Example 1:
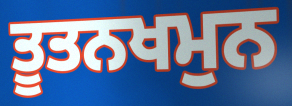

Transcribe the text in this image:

ਤੂਤਨਖਮੁਨ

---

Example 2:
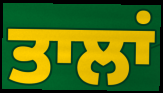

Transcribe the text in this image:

ਤਾਲਾਂ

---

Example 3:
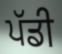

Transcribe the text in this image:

ਪੱਡੀ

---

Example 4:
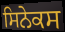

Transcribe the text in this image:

ਸਿਨੇਕਸ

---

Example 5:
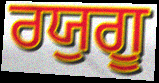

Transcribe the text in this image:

ਰਯੁਗੂ